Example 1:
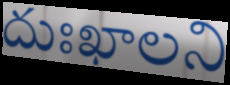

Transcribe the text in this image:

దుఃఖాలని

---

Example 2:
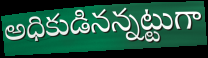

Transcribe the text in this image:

అధికుడినన్నట్టుగా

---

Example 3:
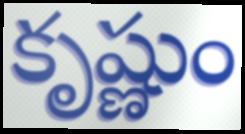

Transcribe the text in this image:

కృష్ణుం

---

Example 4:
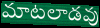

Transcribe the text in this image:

మాటలాడవు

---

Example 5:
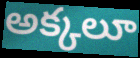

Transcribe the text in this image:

అక్కలూ